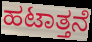
ಹಟಾತ್ತನೆ